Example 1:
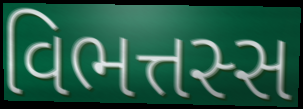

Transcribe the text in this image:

વિભત્તસ્સ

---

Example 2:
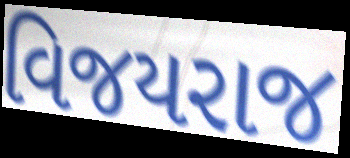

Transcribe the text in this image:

વિજયરાજ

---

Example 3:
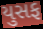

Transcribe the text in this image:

યુસફ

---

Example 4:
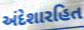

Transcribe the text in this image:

અંદેશારહિત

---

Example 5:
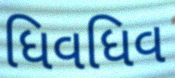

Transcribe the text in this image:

ધિવધિવ